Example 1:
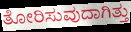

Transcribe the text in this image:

ತೋರಿಸುವುದಾಗಿತ್ತು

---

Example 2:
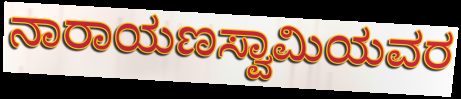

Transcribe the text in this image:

ನಾರಾಯಣಸ್ವಾಮಿಯವರ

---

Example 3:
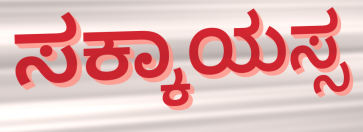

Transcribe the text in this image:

ಸಕ್ಕಾಯಸ್ಸ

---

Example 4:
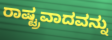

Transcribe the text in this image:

ರಾಷ್ಟ್ರವಾದವನ್ನು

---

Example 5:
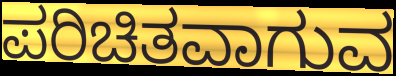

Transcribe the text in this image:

ಪರಿಚಿತವಾಗುವ